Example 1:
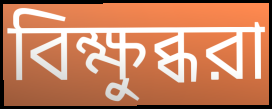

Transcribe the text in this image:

বিক্ষুব্ধরা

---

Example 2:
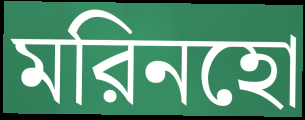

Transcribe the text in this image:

মরিনহো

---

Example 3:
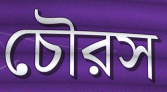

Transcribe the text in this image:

চৌরস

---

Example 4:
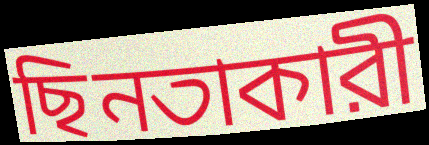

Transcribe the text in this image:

ছিনতাকারী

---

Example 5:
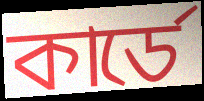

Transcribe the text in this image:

কার্ডে